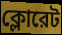
ক্লোরেট